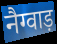
नैग्वाड़